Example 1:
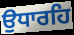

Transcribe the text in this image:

ਉਧਾਰਹਿ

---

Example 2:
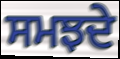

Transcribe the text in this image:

ਸਮਝਦੇ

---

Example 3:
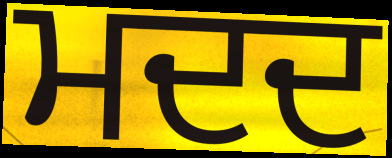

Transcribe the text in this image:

ਮਦਦ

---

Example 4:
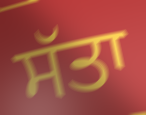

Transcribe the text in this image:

ਸੱਤਾ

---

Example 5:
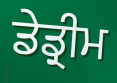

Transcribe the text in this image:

ਡੇਡ੍ਰੀਮ